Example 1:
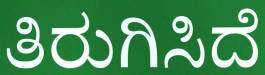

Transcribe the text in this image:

ತಿರುಗಿಸಿದೆ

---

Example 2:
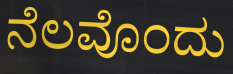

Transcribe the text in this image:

ನೆಲವೊಂದು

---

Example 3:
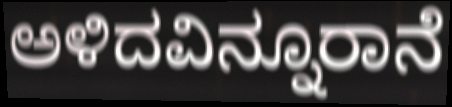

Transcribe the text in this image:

ಅಳಿದವಿನ್ನೂರಾನೆ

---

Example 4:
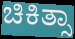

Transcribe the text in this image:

ಚಿಕಿತ್ಸಾ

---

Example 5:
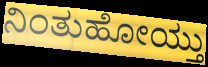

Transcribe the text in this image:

ನಿಂತುಹೋಯ್ತು